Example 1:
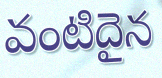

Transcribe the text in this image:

వంటిదైన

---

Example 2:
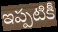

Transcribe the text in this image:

ఇప్పటికీ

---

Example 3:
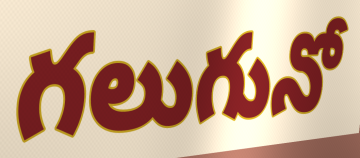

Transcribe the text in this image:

గలుగునో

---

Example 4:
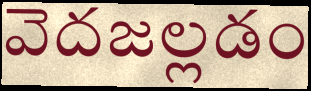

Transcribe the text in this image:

వెదజల్లడం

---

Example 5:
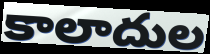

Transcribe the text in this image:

కాలాదుల